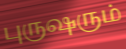
புருஷரும்